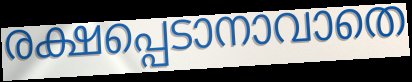
രക്ഷപ്പെടാനാവാതെ